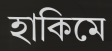
হাকিমে